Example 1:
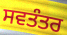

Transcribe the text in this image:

ਸਵਤੰਤਰ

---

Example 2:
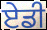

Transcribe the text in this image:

ਏਡੀ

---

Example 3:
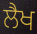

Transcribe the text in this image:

ਲੈਖ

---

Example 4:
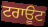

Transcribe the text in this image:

ਟਰਾਊਟ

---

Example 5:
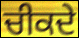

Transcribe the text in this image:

ਚੀਕਦੇ